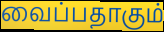
வைப்பதாகும்